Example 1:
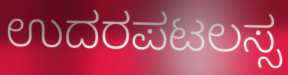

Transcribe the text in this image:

ಉದರಪಟಲಸ್ಸ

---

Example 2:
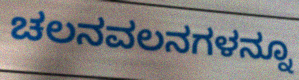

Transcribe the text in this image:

ಚಲನವಲನಗಳನ್ನೂ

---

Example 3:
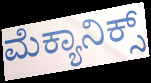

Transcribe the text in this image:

ಮೆಕ್ಯಾನಿಕ್ಸ್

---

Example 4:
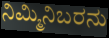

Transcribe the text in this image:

ನಿಮ್ಮಿನಿಬರನು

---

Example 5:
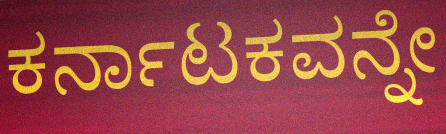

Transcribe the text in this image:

ಕರ್ನಾಟಕವನ್ನೇ